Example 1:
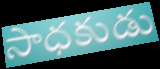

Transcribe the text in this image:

సాధకుడు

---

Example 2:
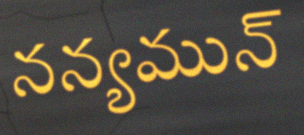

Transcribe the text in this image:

నన్యమున్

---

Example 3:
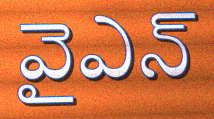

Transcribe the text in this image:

వైఎన్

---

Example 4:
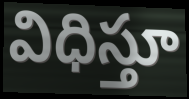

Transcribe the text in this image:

విధిస్తూ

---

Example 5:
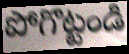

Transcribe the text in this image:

పోగొట్టండి